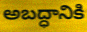
అబద్ధానికి